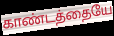
காண்டத்தையே